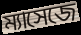
ম্যাসেজে